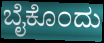
ಬೈಕೊಂದು